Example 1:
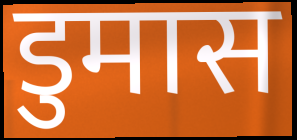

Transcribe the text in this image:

डुमास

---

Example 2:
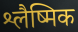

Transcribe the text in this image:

श्लैष्मिक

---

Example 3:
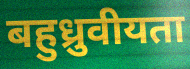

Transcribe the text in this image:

बहुध्रुवीयता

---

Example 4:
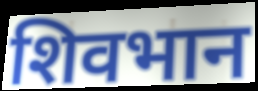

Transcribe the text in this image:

शिवभान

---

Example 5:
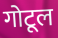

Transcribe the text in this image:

गोटूल